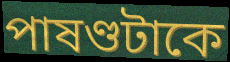
পাষণ্ডটাকে